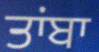
ਤਾਂਬਾ